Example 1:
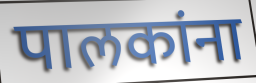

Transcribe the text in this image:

पालकांना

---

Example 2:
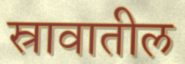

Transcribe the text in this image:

स्रावातील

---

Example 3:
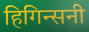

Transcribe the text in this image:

हिगिन्सनी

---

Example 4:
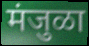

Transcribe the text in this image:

मंजुळा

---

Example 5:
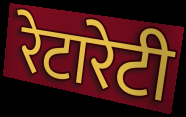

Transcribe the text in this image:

रेटारेटी